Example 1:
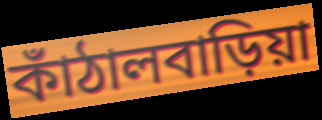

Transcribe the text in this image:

কাঁঠালবাড়িয়া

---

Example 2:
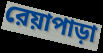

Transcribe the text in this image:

রেয়াপাড়া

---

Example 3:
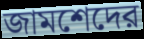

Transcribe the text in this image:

জামশেদের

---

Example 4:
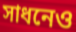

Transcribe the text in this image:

সাধনেও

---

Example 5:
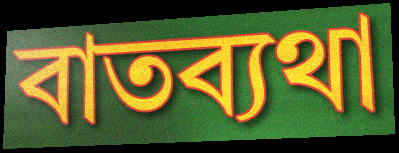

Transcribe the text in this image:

বাতব্যথা